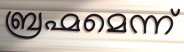
ബ്രഹ്മമെന്ന്